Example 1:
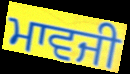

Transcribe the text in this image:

ਮਾਵਜੀ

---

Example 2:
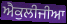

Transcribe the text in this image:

ਐਕੁਲੀਜੀਆ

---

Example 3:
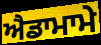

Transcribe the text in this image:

ਐਡਾਮਾਮੇ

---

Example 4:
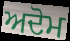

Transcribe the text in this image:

ਅਦੋਮ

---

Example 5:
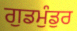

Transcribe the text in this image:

ਗੁਡਮੁੰਡੁਰ